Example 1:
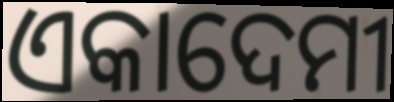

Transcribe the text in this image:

ଏକାଦେମୀ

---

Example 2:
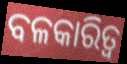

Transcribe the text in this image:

ବଳକାରିତ୍ୱ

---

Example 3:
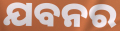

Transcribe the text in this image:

ଯବନର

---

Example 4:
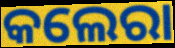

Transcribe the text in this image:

କଲେରା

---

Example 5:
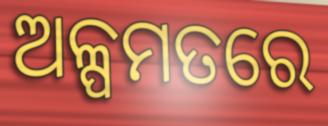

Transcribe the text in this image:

ଅଳ୍ପମତରେ